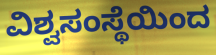
ವಿಶ್ವಸಂಸ್ಥೆಯಿಂದ